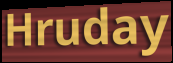
Hruday